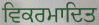
ਵਿਕਰਮਾਦਿਤ